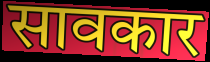
सावकार